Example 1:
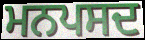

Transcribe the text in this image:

ਮਨਪਸਦ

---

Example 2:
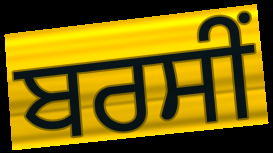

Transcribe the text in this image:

ਬਰਸੀਂ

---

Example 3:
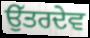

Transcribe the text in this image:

ਉੱਤਰਦੇਵ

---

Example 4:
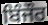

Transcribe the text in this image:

ਬਿੰਜੌਰ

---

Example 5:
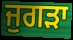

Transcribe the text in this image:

ਜੁਗੜਾ